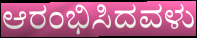
ಆರಂಭಿಸಿದವಳು